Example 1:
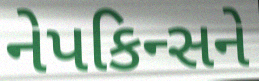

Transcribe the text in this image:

નેપકિન્સને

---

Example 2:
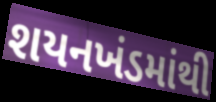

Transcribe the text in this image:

શયનખંડમાંથી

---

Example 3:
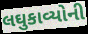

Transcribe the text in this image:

લઘુકાવ્યોની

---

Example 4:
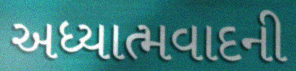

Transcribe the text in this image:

અધ્યાત્મવાદની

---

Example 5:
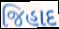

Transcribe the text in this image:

જિહાદ